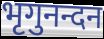
भृगुनन्दन